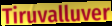
Tiruvalluver